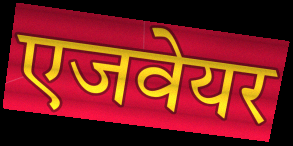
एजवेयर